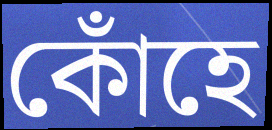
কোঁহে